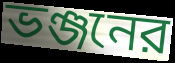
ভঞ্জনের